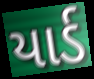
યાર્ડ